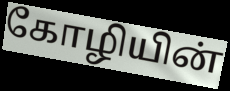
கோழியின்